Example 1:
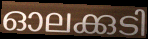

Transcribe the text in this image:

ഓലക്കുടി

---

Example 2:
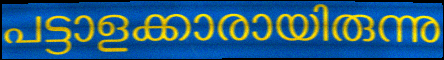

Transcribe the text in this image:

പട്ടാളക്കാരായിരുന്നു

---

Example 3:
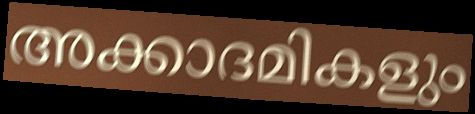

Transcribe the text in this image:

അക്കാദമികളും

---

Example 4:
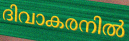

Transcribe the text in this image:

ദിവാകരനിൽ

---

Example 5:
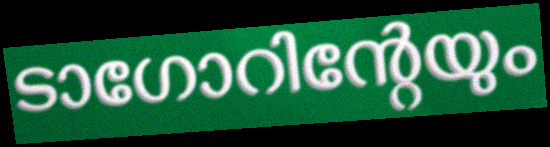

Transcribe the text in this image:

ടാഗോറിന്റേയും